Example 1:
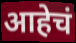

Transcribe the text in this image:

आहेचं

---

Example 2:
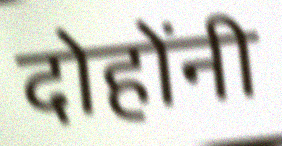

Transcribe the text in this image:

दोहोंनी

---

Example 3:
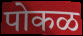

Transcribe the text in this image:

पोकळ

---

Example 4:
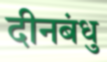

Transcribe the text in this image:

दीनबंधु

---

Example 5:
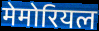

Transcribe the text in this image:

मेमोरियल